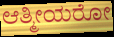
ಆತ್ಮೀಯರೋ